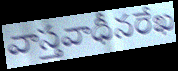
వాస్తవాధీనరేఖ